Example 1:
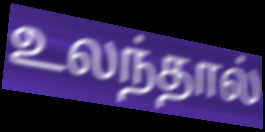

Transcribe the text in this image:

உலந்தால்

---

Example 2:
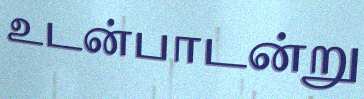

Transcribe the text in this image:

உடன்பாடன்று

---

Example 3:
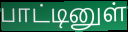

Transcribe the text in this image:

பாட்டினுள்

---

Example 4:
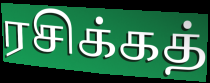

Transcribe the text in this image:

ரசிக்கத்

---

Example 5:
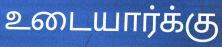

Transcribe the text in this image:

உடையார்க்கு